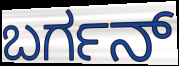
ಬರ್ಗನ್